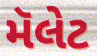
મૅલેટ